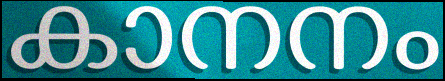
കാനനം